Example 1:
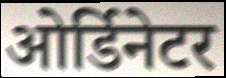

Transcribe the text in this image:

ओर्डिनेटर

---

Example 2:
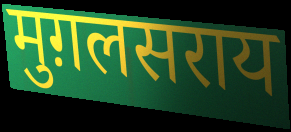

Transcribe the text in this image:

मुग़लसराय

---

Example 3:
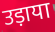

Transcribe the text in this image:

उड़ाया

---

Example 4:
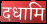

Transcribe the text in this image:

दधामि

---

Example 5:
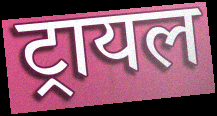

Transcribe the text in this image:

ट्रायल